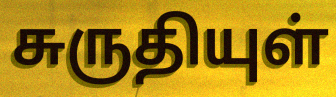
சுருதியுள்